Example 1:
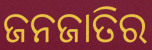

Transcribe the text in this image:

ଜନଜାତିର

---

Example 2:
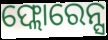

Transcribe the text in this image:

ଫ୍ଲୋରେନ୍ସ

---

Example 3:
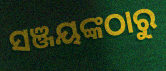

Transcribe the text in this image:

ସଞ୍ଜୟଙ୍କଠାରୁ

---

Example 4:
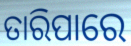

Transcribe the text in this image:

ତାରିପାରେ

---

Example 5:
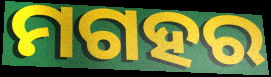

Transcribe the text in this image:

ମଗହର